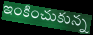
ఇంకించుకున్న